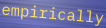
empirically